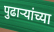
पुढार्‍यांच्या